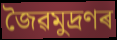
জৈৱমুদ্ৰণৰ